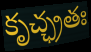
కృచ్ఛ్రతః